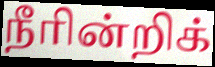
நீரின்றிக்